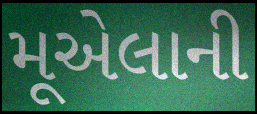
મૂએલાની